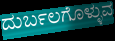
ದುರ್ಬಲಗೊಳ್ಳುವ